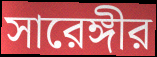
সারেঙ্গীর